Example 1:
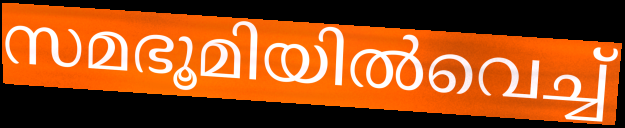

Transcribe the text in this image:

സമഭൂമിയിൽവെച്ച്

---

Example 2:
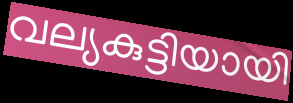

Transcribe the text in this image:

വല്യകുട്ടിയായി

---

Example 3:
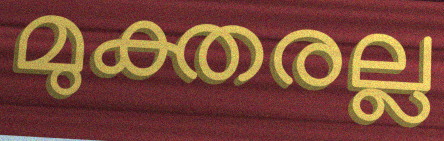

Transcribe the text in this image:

മുക്തരല്ല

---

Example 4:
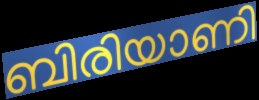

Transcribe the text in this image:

ബിരിയാണി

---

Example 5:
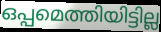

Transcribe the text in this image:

ഒപ്പമെത്തിയിട്ടില്ല